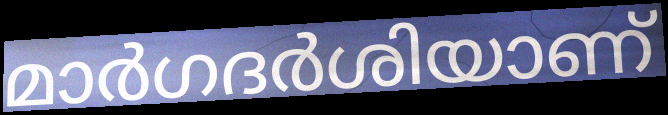
മാർഗദർശിയാണ്